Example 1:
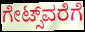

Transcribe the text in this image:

ಗೇಟ್ಸ್‌ವರೆಗೆ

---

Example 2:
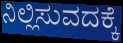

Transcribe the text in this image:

ನಿಲ್ಲಿಸುವದಕ್ಕೆ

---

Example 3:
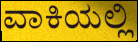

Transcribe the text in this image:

ವಾಕಿಯಲ್ಲಿ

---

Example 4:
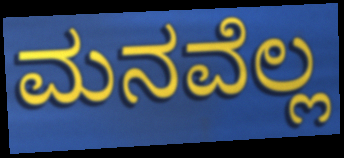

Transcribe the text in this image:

ಮನವೆಲ್ಲ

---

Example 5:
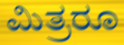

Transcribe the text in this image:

ಮಿತ್ರರೂ